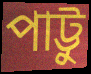
পাট্টু